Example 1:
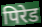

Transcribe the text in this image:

पिरेड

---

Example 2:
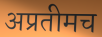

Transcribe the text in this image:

अप्रतीमच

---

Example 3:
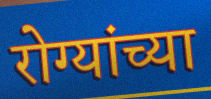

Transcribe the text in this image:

रोग्यांच्या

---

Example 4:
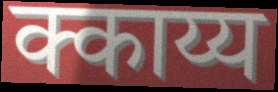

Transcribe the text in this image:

क्काय्य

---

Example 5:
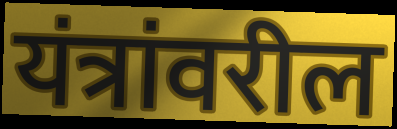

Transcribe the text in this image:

यंत्रांवरील